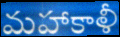
మహాకాళీ